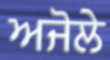
ਅਜੋਲੇ